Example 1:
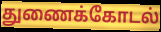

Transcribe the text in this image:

துணைக்கோடல்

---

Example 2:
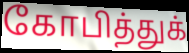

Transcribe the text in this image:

கோபித்துக்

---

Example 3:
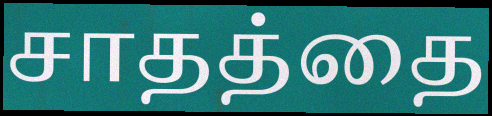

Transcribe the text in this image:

சாதத்தை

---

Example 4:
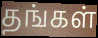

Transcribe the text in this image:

தங்கள்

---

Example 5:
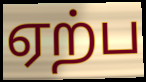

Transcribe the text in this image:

ஏற்ப